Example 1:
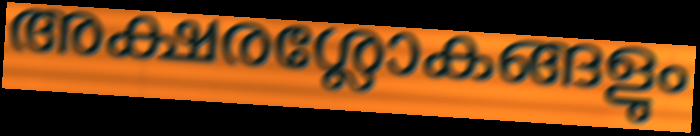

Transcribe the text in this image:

അക്ഷരശ്ലോകങ്ങളും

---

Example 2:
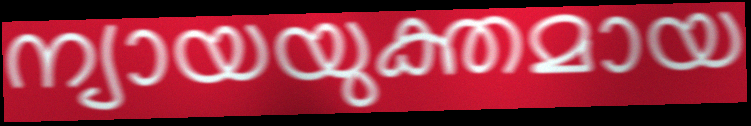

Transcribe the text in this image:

ന്യായയുക്തമായ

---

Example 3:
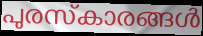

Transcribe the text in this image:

പുരസ്‌കാരങ്ങൾ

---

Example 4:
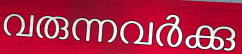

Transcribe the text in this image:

വരുന്നവർക്കു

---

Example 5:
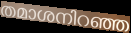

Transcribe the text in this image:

തമാശനിറഞ്ഞ